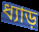
ধ্যাড়